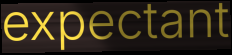
expectant